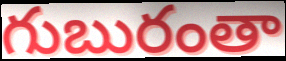
గుబురంతా